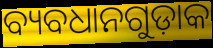
ବ୍ୟବଧାନଗୁଡ଼ାକ